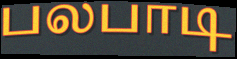
பலபாடி